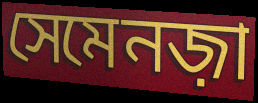
সেমেনজ়া